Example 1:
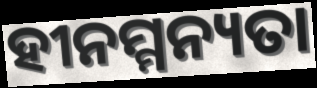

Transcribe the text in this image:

ହୀନମ୍ମନ୍ୟତା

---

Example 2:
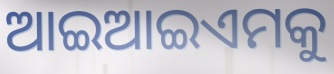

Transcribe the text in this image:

ଆଇଆଇଏମକୁ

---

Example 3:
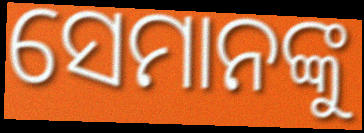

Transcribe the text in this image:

ସେମାନଙ୍କୁ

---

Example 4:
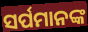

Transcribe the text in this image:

ସର୍ପମାନଙ୍କ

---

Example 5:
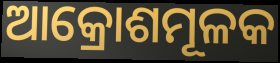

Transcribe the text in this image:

ଆକ୍ରୋଶମୂଳକ